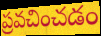
ప్రవచించడం